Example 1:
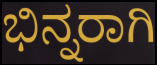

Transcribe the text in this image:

ಭಿನ್ನರಾಗಿ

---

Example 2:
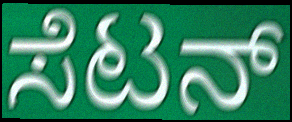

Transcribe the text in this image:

ಸೆಟನ್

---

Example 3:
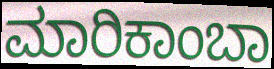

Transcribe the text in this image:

ಮಾರಿಕಾಂಬಾ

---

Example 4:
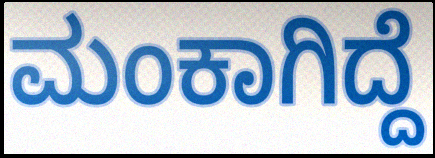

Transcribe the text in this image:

ಮಂಕಾಗಿದ್ದೆ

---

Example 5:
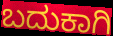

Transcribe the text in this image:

ಬದುಕಾಗಿ